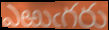
ఎఱుఁగరు